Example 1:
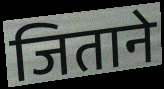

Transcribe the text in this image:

जिताने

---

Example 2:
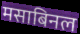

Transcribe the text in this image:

मसाबिनल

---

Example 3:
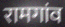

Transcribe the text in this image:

रामगांव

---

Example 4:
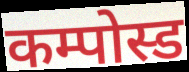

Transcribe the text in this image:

कम्पोस्ड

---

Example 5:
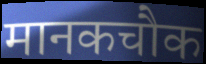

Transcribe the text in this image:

मानकचौक